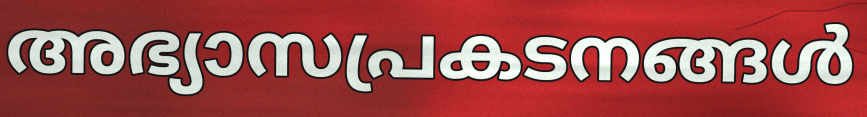
അഭ്യാസപ്രകടനങ്ങൾ